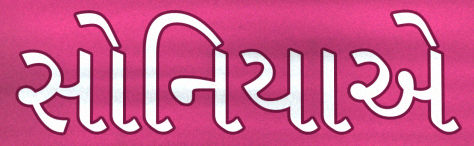
સોનિયાએ